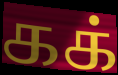
கக்